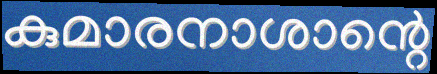
കുമാരനാശാന്റെ